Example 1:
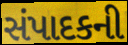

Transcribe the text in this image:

સંપાદકની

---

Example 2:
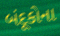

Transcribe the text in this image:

બંદૂકોના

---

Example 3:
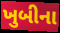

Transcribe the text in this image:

ખુબીના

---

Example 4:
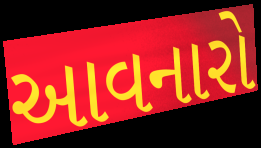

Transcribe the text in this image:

આવનારો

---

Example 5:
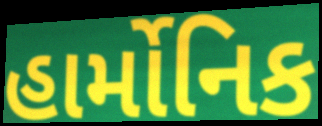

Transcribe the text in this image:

હાર્મોનિક